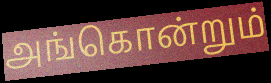
அங்கொன்றும்